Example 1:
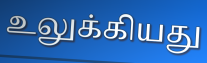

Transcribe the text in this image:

உலுக்கியது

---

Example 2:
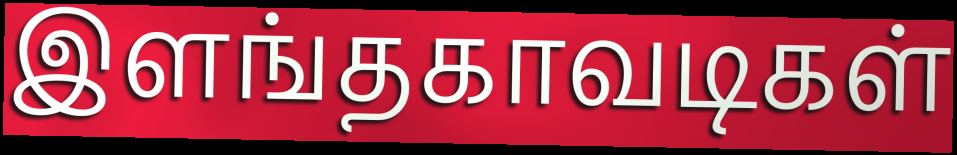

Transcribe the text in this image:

இளங்தகாவடிகள்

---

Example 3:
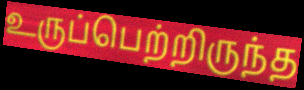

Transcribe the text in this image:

உருப்பெற்றிருந்த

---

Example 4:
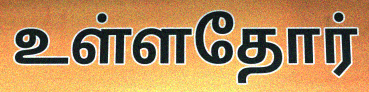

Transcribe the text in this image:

உள்ளதோர்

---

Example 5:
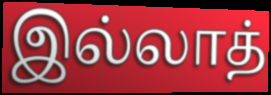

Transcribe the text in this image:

இல்லாத்